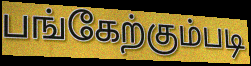
பங்கேற்கும்படி